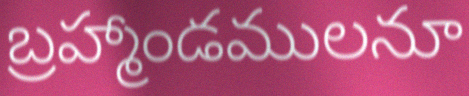
బ్రహ్మాండములనూ